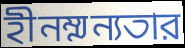
হীনম্মন্যতার